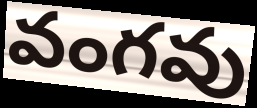
వంగవు